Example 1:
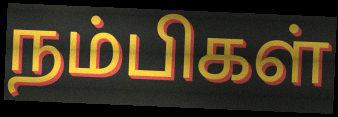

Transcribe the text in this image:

நம்பிகள்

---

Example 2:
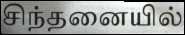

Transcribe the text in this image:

சிந்தனையில்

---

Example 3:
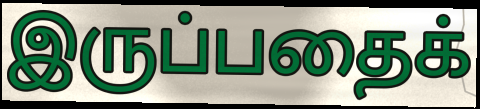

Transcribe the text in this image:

இருப்பதைக்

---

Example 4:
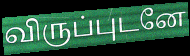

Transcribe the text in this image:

விருப்புடனே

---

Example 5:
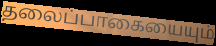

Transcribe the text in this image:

தலைப்பாகையையும்